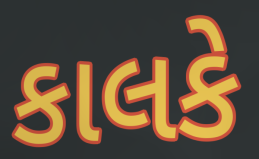
કાલકે